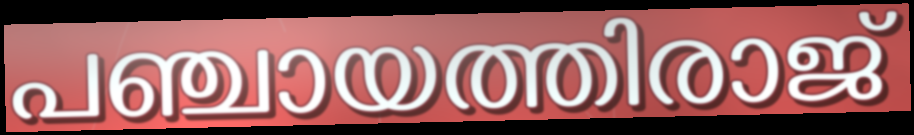
പഞ്ചായത്തിരാജ്